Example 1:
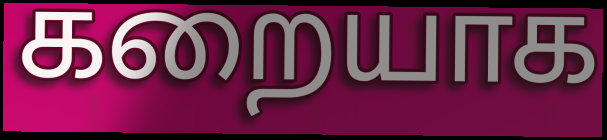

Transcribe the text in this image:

கறையாக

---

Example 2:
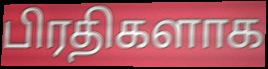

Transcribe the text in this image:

பிரதிகளாக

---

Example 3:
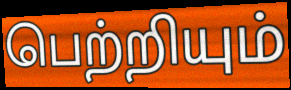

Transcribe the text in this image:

பெற்றியும்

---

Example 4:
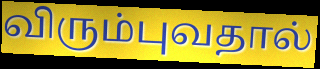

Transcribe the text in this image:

விரும்புவதால்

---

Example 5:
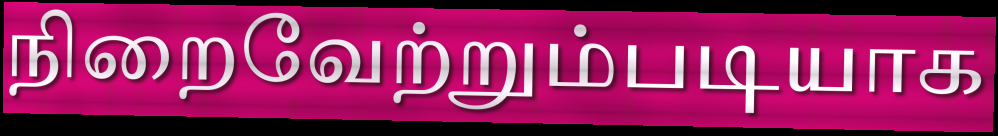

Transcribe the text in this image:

நிறைவேற்றும்படியாக